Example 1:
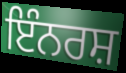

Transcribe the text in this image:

ਇੰਨਰਸ਼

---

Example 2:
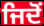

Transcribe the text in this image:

ਜਿਦੋਂ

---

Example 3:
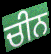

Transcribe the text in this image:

ਚੀਨ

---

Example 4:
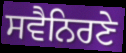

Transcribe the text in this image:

ਸਵੈਨਿਰਣੇ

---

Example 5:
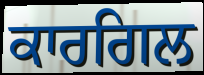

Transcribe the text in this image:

ਕਾਰਗਿਲ